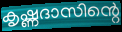
കൃഷ്ണദാസിന്റെ